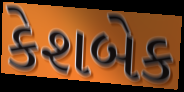
કેશબેક